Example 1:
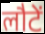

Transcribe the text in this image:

लौटें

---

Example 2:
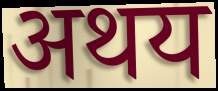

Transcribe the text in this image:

अथय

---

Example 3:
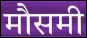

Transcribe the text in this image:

मौसमी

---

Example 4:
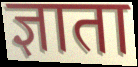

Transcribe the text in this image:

ज्ञाता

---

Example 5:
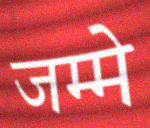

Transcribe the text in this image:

जम्मे